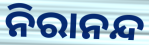
ନିରାନନ୍ଦ